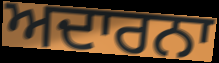
ਅਦਾਰਨਾ